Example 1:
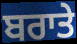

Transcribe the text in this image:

ਬਰਾਤੇ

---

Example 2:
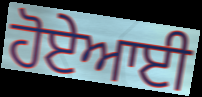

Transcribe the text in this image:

ਹੋਏਆਈ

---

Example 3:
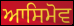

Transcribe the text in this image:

ਆਸਿਮੋਵ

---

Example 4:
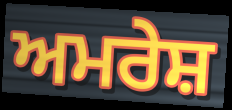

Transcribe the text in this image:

ਅਮਰੇਸ਼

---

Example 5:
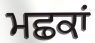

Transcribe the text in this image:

ਮਛਕਾਂ